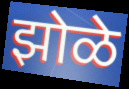
झोळे